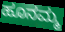
ಹೂನಮ್ಮ